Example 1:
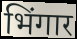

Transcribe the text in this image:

भिंगार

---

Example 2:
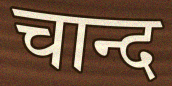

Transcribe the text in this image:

चान्द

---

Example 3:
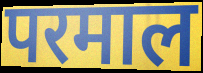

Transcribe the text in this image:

परमाल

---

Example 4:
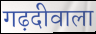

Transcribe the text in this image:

गढ़दीवाला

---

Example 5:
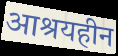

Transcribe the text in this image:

आश्रयहीन